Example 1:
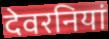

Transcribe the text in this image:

देवरनियां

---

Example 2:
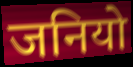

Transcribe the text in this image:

जनियो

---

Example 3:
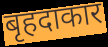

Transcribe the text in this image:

बृहदाकार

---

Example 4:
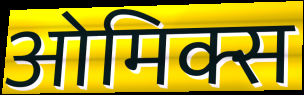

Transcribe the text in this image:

ओमिक्स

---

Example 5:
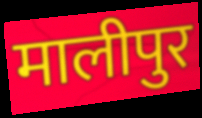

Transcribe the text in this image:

मालीपुर